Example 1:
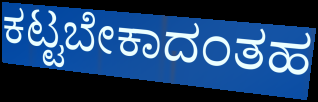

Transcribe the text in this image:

ಕಟ್ಟಬೇಕಾದಂತಹ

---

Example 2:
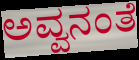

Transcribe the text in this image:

ಅವ್ವನಂತೆ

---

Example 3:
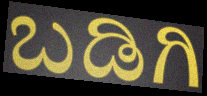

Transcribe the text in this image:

ಬಡಿಗಿ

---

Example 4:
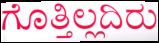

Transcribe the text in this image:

ಗೊತ್ತಿಲ್ಲದಿರು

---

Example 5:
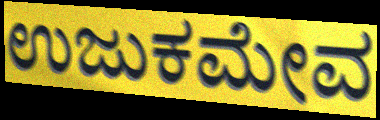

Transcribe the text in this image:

ಉಜುಕಮೇವ